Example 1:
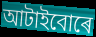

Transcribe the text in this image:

আটাইবোৰে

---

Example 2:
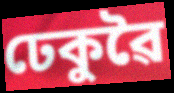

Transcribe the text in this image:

ঢেকুৱৈ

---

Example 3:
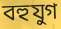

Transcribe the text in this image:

বহুযুগ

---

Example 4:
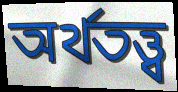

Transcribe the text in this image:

অৰ্থতত্ত্ব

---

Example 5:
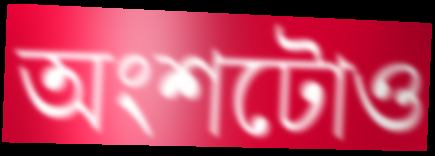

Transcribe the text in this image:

অংশটোও